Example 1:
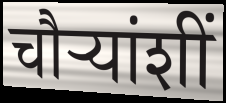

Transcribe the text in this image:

चौर्‍यांशीं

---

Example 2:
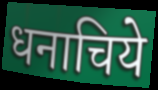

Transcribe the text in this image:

धनाचिये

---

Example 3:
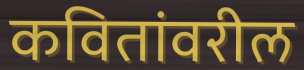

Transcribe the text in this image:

कवितांवरील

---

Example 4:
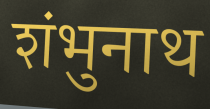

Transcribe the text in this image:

शंभुनाथ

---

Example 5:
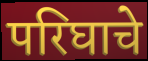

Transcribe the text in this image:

परिघाचे